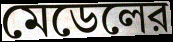
মেডেলের